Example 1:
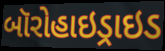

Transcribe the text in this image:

બૉરોહાઇડ્રાઇડ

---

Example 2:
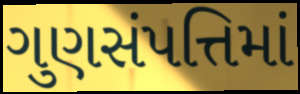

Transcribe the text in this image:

ગુણસંપત્તિમાં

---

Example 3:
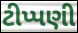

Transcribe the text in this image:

ટીપ્પણી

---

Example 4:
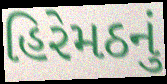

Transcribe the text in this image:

હિરેમઠનું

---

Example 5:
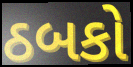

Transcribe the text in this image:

ઠબકો